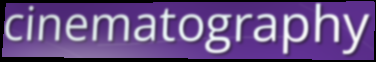
cinematography